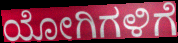
ಯೋಗಿಗಳಿಗೆ